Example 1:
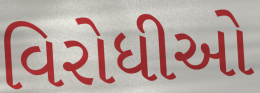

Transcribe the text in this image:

વિરોધીઓ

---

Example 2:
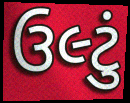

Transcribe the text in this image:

ઉલ્ટું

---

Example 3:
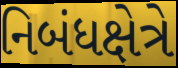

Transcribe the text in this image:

નિબંધક્ષેત્રે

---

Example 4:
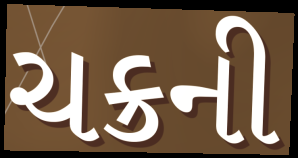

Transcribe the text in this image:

ચક્રની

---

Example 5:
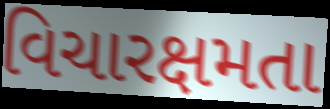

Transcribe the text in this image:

વિચારક્ષમતા